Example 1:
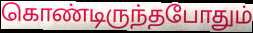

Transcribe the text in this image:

கொண்டிருந்தபோதும்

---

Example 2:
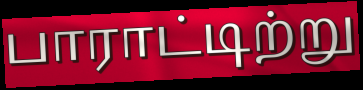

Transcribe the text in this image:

பாராட்டிற்று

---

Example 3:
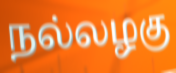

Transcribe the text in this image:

நல்லழகு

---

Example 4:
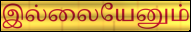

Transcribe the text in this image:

இல்லையேனும்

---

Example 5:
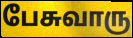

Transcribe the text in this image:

பேசுவாரு